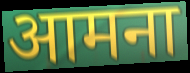
आमना